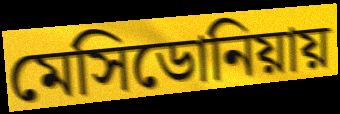
মেসিডোনিয়ায়